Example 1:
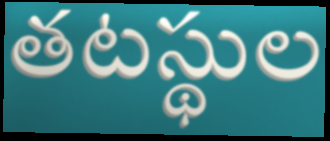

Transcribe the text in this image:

తటస్థుల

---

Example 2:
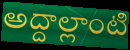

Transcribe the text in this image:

అద్దాల్లాంటి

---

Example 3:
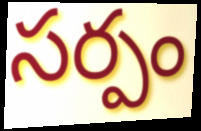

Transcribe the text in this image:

సర్పం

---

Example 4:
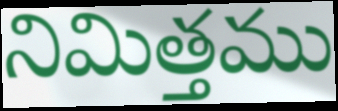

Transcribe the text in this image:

నిమిత్తము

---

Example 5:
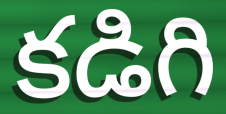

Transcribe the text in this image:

కడిగి